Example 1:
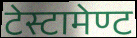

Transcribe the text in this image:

टेस्टामेण्ट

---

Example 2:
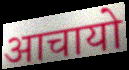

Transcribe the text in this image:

आचायो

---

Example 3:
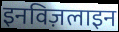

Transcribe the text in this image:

इनविज़लाइन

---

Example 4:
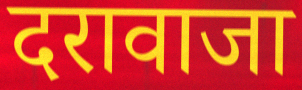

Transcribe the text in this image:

दरावाजा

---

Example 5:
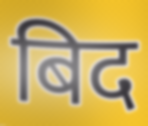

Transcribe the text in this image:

बिद